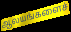
ஆலயங்களைச்